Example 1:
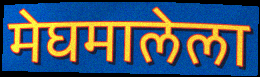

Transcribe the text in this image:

मेघमालेला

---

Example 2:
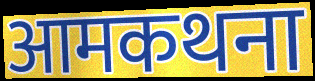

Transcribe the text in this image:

आमकथना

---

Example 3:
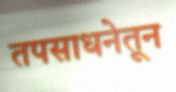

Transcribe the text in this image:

तपसाधनेतून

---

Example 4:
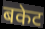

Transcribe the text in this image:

बकेट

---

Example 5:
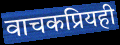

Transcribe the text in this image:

वाचकप्रियही